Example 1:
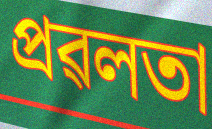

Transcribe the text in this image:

প্ৰৱলতা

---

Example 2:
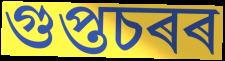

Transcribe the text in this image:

গুপ্তচৰৰ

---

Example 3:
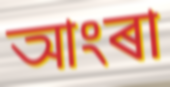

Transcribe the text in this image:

আংৰা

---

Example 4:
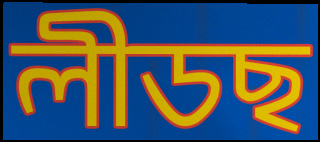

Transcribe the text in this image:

লীডছ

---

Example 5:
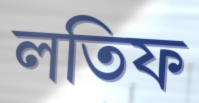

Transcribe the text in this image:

লতিফ